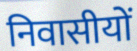
निवासीयों